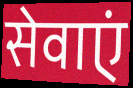
सेवाएं